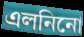
এলনিনো